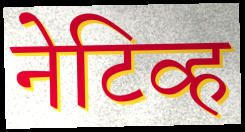
नेटिव्ह